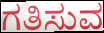
ಗತಿಸುವ